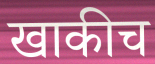
खाकीच